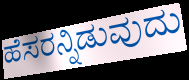
ಹೆಸರನ್ನಿಡುವುದು